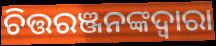
ଚିତ୍ତରଞ୍ଜନଙ୍କଦ୍ଵାରା